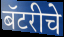
बॅटरीचे